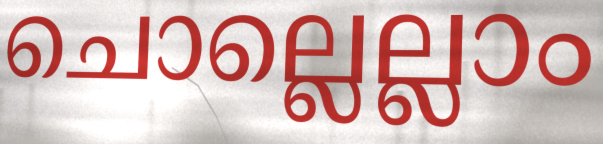
ചൊല്ലെല്ലാം